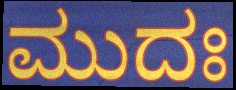
ಮುದಃ